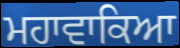
ਮਹਾਵਾਕਿਆ